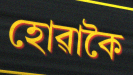
হোৱাকৈ